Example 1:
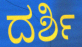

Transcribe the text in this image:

ದರ್ಶಿ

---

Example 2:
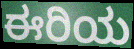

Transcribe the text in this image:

ಈರಿಯ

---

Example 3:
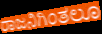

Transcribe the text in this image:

ರಾಜನಿಗಿಂತಲೂ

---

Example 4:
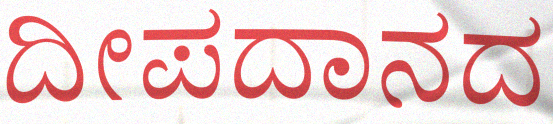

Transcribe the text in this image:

ದೀಪದಾನದ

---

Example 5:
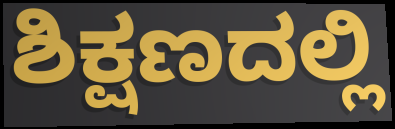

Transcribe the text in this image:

ಶಿಕ್ಷಣದಲ್ಲಿ